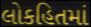
લોકહિતમાં